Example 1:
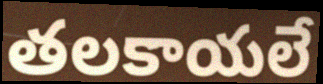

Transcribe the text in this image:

తలకాయలే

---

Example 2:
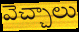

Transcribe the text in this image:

వెచ్చాలు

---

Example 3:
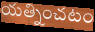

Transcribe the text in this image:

యత్నించటం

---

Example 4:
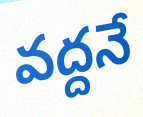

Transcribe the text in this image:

వద్దనే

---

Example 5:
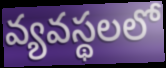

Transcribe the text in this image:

వ్యవస్థలలో